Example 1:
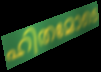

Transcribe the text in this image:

ഹിതമോടെ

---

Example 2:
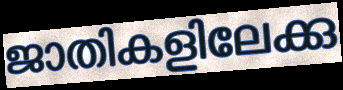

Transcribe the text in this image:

ജാതികളിലേക്കു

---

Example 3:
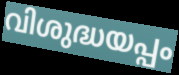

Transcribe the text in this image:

വിശുദ്ധയപ്പം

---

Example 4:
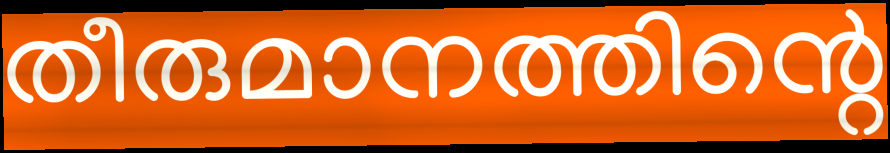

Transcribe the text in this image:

തീരുമാനത്തിന്റെ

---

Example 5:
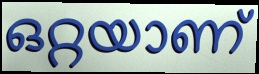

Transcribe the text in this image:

ഒറ്റയാണ്